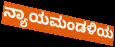
ನ್ಯಾಯಮಂಡಳಿಯ